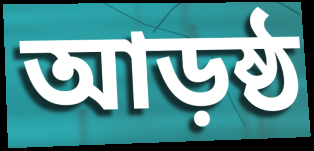
আড়ষ্ঠ